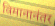
विमानानंतर